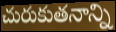
చురుకుతనాన్ని